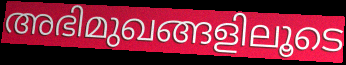
അഭിമുഖങ്ങളിലൂടെ